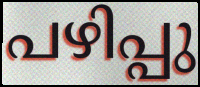
പഴിപ്പു